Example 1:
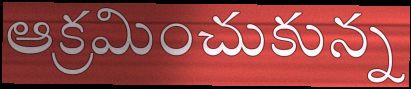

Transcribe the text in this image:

ఆక్రమించుకున్న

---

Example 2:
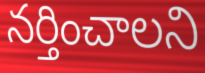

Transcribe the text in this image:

నర్తించాలని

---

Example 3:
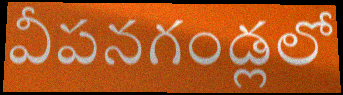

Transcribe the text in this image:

వీపనగండ్లలో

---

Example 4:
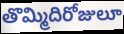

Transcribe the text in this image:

తొమ్మిదిరోజులూ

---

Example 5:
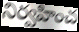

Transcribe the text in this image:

నిర్వహించ